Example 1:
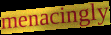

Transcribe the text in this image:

menacingly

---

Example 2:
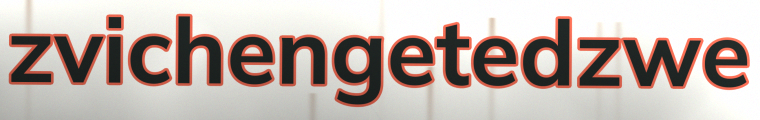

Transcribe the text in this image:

zvichengetedzwe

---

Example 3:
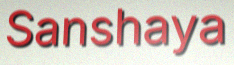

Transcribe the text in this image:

Sanshaya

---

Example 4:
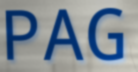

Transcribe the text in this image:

PAG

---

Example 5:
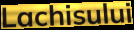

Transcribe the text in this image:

Lachisului